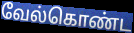
வேல்கொண்ட